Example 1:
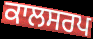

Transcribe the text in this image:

ਕਾਲਸਰਪ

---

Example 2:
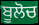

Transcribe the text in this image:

ਬੂਲੋਚ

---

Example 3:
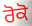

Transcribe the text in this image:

ਰੋਕੋ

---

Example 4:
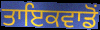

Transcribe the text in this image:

ਤਾਇਕਵਾਡੋਂ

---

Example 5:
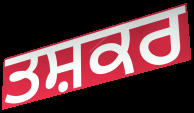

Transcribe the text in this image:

ਤਸ਼ਕਰ